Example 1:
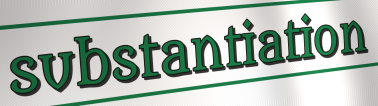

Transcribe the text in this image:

substantiation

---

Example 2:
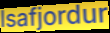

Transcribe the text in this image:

Isafjordur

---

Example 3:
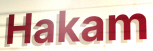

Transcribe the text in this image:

Hakam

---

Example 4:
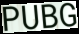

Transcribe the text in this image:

PUBG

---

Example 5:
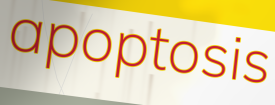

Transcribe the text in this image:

apoptosis